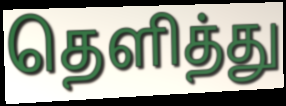
தெளித்து